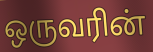
ஒருவரின்